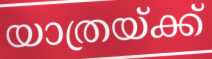
യാത്രയ്ക്ക്